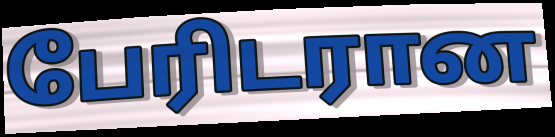
பேரிடரான